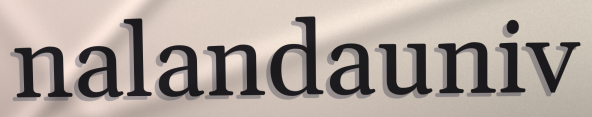
nalandauniv